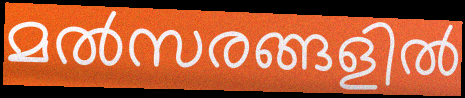
മൽസരങ്ങളിൽ